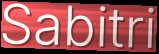
Sabitri